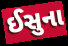
ઈસુના